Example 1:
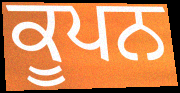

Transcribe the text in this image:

ਕੂਪਨ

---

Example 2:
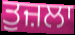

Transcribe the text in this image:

ਤੁਜ਼ਲਾ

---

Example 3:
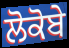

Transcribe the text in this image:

ਲੋਕੋਬੇ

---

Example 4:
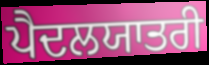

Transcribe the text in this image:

ਪੈਦਲਯਾਤਰੀ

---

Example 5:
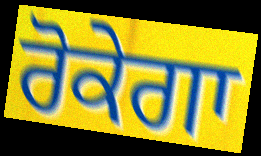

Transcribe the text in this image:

ਰੋਕੇਗਾ